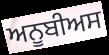
ਅਨੂਬੀਅਸ